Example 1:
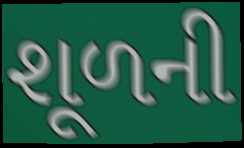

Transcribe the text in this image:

શૂળની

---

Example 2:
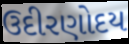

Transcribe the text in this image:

ઉદીરણોદય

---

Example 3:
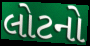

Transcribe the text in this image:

લોટનો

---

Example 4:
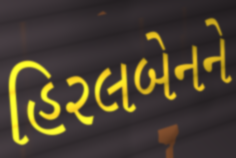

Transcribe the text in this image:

હિરલબેનને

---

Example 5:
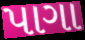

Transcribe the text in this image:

પાગા